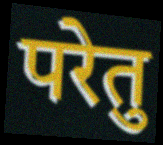
परेतु